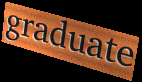
graduate